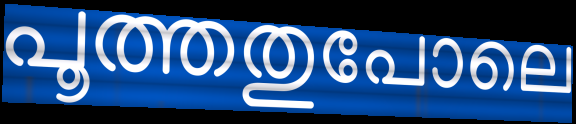
പൂത്തതുപോലെ